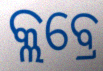
କ୍ଲବ୍ରେ